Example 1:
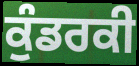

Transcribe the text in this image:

ਕੁੰਡਰਕੀ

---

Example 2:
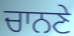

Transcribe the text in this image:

ਚਾਨਣੇ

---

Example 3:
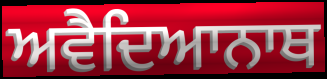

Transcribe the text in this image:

ਅਵੈਦਿਆਨਾਥ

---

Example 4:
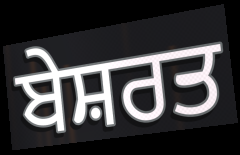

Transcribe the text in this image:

ਬੇਸ਼ਰਤ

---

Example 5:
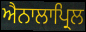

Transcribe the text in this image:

ਐਨਾਲਾਪ੍ਰਿਲ